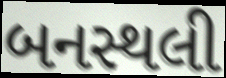
બનસ્થલી